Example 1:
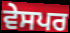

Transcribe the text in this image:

ਵੇਸਪਰ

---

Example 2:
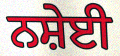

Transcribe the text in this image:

ਨਸ਼ੇਈ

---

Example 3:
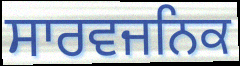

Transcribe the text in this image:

ਸਾਰਵਜਨਿਕ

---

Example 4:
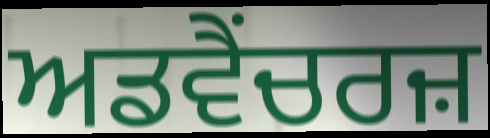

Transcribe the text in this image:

ਅਡਵੈਂਚਰਜ਼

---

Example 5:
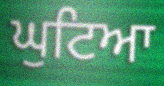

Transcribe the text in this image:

ਘੁਟਿਆ